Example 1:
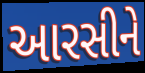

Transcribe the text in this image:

આરસીને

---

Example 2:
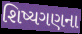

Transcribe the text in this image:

શિષ્યગણના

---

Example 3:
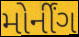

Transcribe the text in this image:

મોર્નીંગ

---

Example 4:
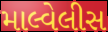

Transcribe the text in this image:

માલ્વેલીસ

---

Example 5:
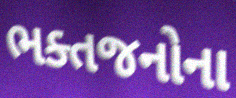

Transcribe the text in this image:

ભક્તજનોના